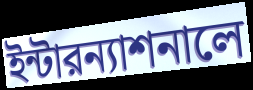
ইন্টারন্যাশনালে